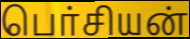
பெர்சியன்